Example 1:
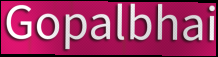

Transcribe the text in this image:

Gopalbhai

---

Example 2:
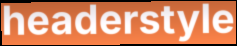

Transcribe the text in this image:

headerstyle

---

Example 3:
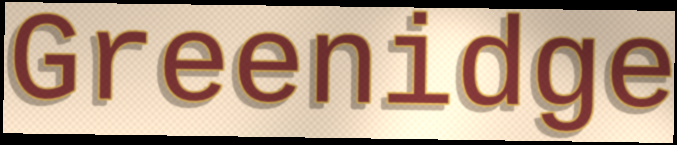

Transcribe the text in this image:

Greenidge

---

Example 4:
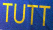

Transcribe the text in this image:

TUTT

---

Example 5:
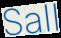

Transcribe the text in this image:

Sall